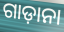
ଗାଡ଼ାନା